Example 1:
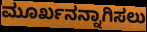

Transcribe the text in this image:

ಮೂರ್ಖನನ್ನಾಗಿಸಲು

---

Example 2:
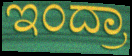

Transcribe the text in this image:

ಇಂದ್ರಾ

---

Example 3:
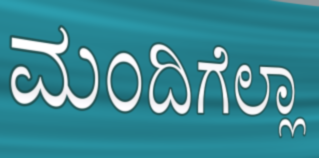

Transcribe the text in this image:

ಮಂದಿಗೆಲ್ಲಾ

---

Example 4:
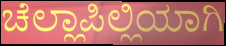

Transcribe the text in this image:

ಚೆಲ್ಲಾಪಿಲ್ಲಿಯಾಗಿ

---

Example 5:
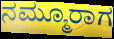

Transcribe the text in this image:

ನಮ್ಮೂರಾಗ